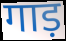
गाड़